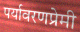
पर्यावरणप्रेमी